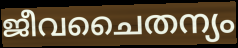
ജീവചൈതന്യം